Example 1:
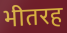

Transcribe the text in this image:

भीतरह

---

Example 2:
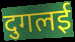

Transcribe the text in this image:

दुगलई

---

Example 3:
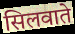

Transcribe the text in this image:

सिलवाते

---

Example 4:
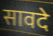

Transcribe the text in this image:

सावदे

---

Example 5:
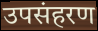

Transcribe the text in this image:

उपसंहरण